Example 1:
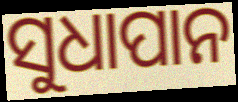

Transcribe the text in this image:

ସୁଧାପାନ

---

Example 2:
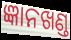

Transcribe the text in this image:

ଜ୍ଞାନଖଣ୍ଡ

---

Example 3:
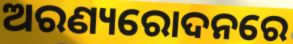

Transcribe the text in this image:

ଅରଣ୍ୟରୋଦନରେ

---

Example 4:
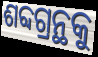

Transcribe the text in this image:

ଶବ୍ଦଗ୍ରନ୍ଥକୁ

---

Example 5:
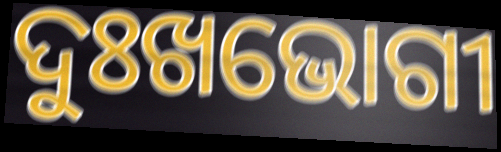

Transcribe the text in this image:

ଦୁଃଖଭୋଗୀ